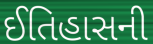
ઈતિહાસની